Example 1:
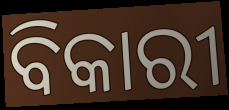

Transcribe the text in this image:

ବିକାରୀ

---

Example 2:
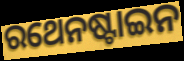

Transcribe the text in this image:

ରଥେନଷ୍ଟାଇନ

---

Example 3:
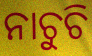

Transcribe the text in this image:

ନାଚୁଚି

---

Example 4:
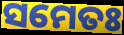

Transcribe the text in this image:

ସମେତଃ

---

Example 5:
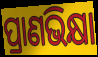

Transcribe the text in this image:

ପ୍ରାଣଭିକ୍ଷା